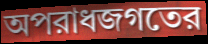
অপরাধজগতের